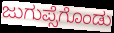
ಜುಗುಪ್ಸೆಗೊಂಡು